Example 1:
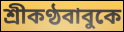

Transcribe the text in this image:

শ্রীকণ্ঠবাবুকে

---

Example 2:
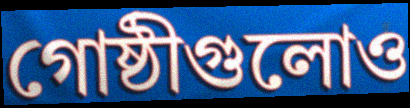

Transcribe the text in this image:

গোষ্ঠীগুলোও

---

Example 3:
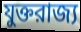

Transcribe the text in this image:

যুক্তরাজ্য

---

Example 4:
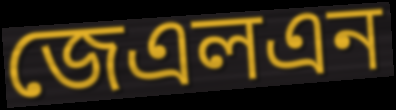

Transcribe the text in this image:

জেএলএন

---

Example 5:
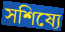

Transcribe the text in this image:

সশিষ্যে